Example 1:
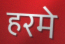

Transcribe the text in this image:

हरमे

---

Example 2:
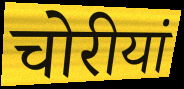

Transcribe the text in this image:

चोरीयां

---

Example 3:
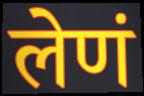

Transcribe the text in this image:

लेणं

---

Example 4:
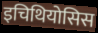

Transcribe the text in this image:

इचिथियोसिस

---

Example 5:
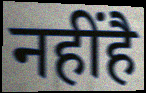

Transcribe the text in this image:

नहींहै